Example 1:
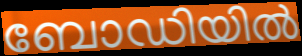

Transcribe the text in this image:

ബോഡിയിൽ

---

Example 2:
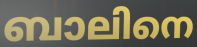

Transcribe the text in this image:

ബാലിനെ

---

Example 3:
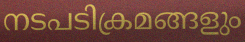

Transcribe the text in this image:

നടപടിക്രമങ്ങളും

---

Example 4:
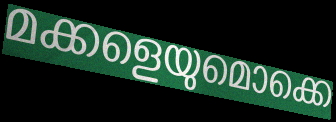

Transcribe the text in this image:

മക്കളെയുമൊക്കെ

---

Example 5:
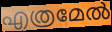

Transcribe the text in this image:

എത്രമേൽ